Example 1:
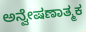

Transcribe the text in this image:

ಅನ್ವೇಷಣಾತ್ಮಕ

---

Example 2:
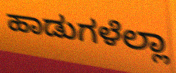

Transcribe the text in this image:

ಹಾಡುಗಳೆಲ್ಲಾ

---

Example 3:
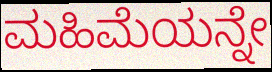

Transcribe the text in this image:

ಮಹಿಮೆಯನ್ನೇ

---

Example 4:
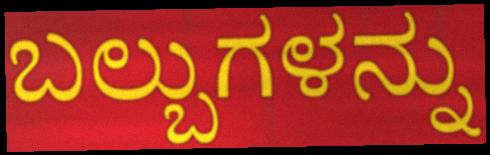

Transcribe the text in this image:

ಬಲ್ಬುಗಳನ್ನು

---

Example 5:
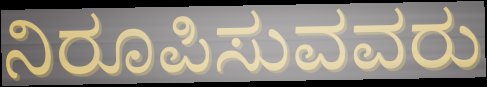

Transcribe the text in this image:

ನಿರೂಪಿಸುವವರು